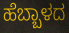
ಹೆಬ್ಬಾಳದ